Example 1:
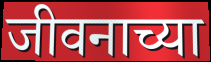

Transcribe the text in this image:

जीवनाच्या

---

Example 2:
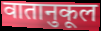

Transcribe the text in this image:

वातानुकूल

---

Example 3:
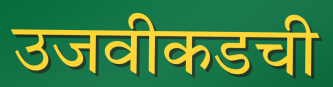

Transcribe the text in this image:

उजवीकडची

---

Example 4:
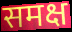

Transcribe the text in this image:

समक्ष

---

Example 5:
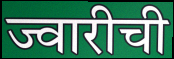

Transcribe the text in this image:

ज्वारीची